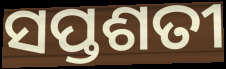
ସପ୍ତଶତୀ